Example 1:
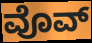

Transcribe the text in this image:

ವೊವ್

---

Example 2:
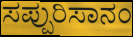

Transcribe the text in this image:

ಸಪ್ಪುರಿಸಾನಂ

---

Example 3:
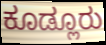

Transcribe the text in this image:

ಕೂಡ್ಲೂರು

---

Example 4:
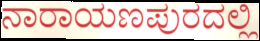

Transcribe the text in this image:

ನಾರಾಯಣಪುರದಲ್ಲಿ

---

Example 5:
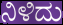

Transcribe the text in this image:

ನಿಳಿದು